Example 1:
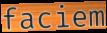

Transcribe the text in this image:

faciem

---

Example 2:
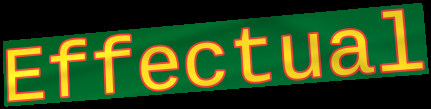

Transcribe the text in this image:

Effectual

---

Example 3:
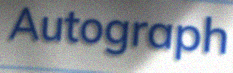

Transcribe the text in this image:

Autograph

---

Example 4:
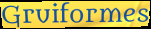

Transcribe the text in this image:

Gruiformes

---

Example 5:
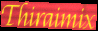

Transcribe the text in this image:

Thiraimix